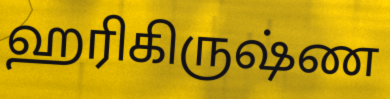
ஹரிகிருஷ்ண